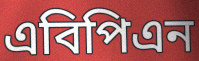
এবিপিএন